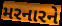
મરનારને